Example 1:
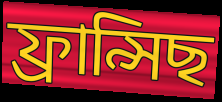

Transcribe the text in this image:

ফ্ৰান্সিছ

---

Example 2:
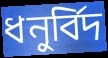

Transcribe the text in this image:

ধনুৰ্বিদ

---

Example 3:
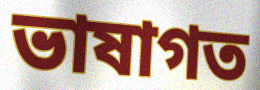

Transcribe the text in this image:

ভাষাগত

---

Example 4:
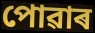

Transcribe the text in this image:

পোৱাৰ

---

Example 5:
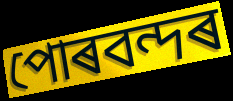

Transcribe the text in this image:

পোৰবন্দৰ